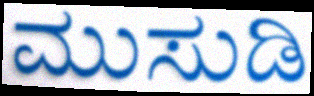
ಮುಸುಡಿ